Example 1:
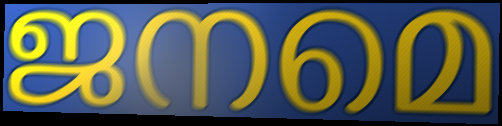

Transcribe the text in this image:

ജനമെ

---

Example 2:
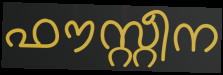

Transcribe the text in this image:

ഫൗസ്റ്റീന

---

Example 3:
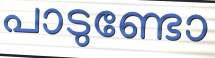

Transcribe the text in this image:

പാടുണ്ടോ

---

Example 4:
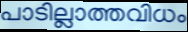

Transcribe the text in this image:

പാടില്ലാത്തവിധം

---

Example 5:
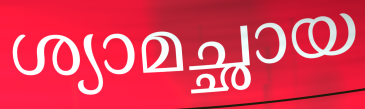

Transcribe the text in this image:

ശ്യാമച്ഛായ